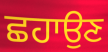
ਛਹਾਉਣ